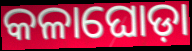
କଳାଘୋଡ଼ା